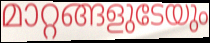
മാറ്റങ്ങളുടേയും